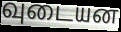
வுடையன